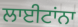
ਲਾਈਟਾਂਨਾ